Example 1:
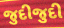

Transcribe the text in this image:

જુદીજુદી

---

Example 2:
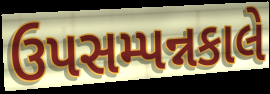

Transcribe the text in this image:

ઉપસમ્પન્નકાલે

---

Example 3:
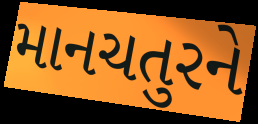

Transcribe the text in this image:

માનચતુરને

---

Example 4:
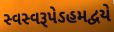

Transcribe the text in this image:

સ્વસ્વરૂપેઽહમદ્વયે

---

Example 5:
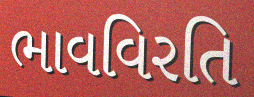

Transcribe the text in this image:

ભાવવિરતિ